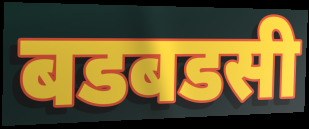
बडबडसी